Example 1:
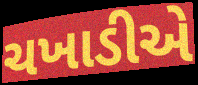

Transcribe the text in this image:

ચખાડીએ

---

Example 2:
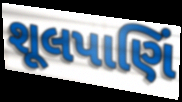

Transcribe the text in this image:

શૂલપાણિં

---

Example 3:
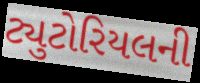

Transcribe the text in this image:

ટ્યુટોરિયલની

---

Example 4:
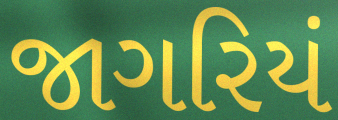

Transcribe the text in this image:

જાગરિયં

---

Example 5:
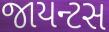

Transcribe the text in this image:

જાયન્ટસ